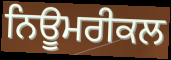
ਨਿਊਮਰੀਕਲ